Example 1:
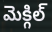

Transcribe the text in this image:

మెక్గిల్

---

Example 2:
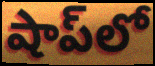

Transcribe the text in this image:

షాప్‌లో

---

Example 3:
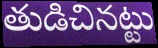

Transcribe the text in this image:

తుడిచినట్టు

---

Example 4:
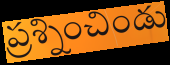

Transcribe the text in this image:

ప్రశ్నించిండు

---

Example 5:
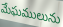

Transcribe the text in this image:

మేఘములును